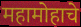
महामोहाचे